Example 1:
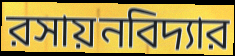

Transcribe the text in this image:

রসায়নবিদ্যার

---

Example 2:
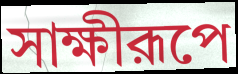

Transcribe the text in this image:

সাক্ষীরূপে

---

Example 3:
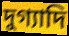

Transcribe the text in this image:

দুগ্যাদি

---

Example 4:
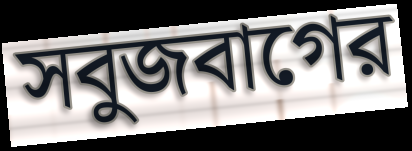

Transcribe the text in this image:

সবুজবাগের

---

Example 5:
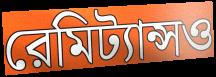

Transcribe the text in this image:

রেমিট্যান্সও